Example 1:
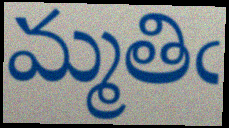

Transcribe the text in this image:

మ్మతిఁ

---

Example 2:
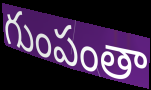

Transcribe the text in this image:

గుంపంతా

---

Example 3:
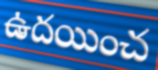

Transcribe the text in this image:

ఉదయించ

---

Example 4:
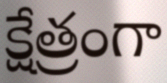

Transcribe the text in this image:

క్షేత్రంగా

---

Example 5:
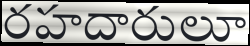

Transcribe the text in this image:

రహదారులూ